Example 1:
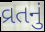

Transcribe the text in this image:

વ્રતનું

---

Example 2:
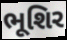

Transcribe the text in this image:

ભૂશિર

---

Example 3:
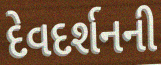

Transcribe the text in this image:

દેવદર્શનની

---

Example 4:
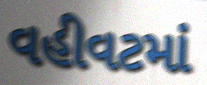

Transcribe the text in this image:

વહીવટમાં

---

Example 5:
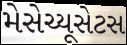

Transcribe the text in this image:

મેસેચ્યૂસેટસ